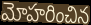
మోహరించిన